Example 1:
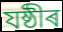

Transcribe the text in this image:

যষ্ঠীৰ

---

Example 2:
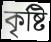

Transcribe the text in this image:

কৃষ্টি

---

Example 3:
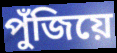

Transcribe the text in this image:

পুঁজিয়ে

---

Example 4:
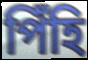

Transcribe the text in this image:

পিঁহি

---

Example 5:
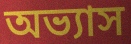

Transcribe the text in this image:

অভ্যাস